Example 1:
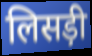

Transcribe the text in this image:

लिसड़ी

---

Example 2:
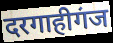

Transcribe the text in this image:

दरगाहीगंज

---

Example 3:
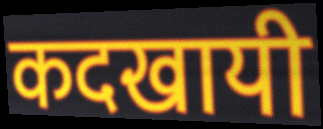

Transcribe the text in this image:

कदखायी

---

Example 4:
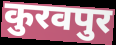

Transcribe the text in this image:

कुरवपुर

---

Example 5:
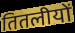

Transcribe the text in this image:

तितलीयों